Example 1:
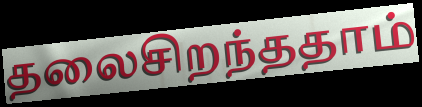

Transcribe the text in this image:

தலைசிறந்ததாம்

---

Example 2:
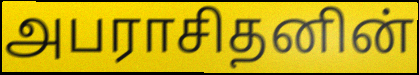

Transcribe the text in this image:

அபராசிதனின்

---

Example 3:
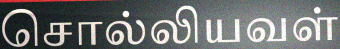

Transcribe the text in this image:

சொல்லியவள்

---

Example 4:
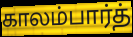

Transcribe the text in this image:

காலம்பார்த்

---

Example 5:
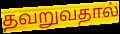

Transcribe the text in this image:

தவறுவதால்